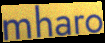
mharo